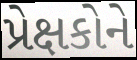
પ્રેક્ષકોને